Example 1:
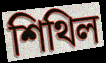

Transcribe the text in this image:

শিথিল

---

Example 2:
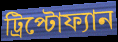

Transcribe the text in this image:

ট্রিপ্টোফ্যান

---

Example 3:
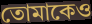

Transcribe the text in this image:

তোমাকেও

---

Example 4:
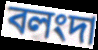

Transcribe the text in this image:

বলংদা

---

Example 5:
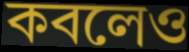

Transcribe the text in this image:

কবলেও